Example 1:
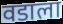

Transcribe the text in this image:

वडाला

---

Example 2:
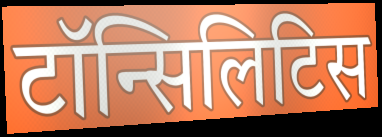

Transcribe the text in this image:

टॉन्सिलिटिस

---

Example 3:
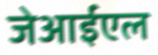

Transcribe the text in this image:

जेआईएल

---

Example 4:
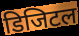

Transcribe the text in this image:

डिजिटल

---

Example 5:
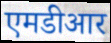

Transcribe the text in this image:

एमडीआर